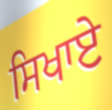
ਸਿਖਾਏ